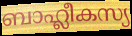
ബാഹ്ലീകസ്യ